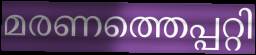
മരണത്തെപ്പറ്റി